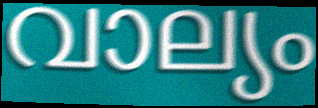
വാല്യം